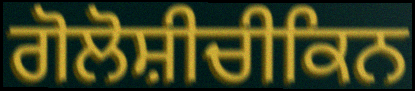
ਗੋਲੋਸ਼ੀਚੀਕਿਨ